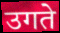
उगते